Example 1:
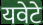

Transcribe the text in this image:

यवेटे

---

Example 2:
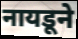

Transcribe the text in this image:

नायडूने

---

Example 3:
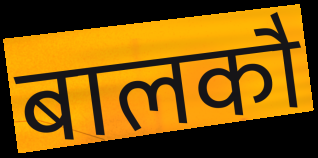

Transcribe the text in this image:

बालकौ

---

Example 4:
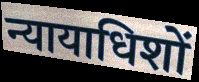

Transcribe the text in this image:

न्यायाधिशों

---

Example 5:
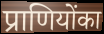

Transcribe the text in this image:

प्राणियोंका